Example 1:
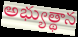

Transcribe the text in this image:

అభ్యుత్థాన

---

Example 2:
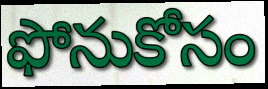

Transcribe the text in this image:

ఫోనుకోసం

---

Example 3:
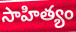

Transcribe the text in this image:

సాహిత్యం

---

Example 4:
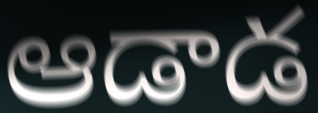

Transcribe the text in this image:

ఆడాడ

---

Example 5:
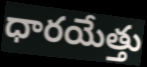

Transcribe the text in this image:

ధారయేత్తు